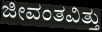
ಜೀವಂತವಿತ್ತು